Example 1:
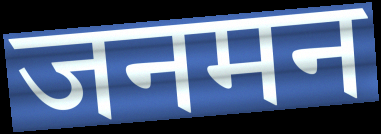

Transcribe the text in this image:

जनमन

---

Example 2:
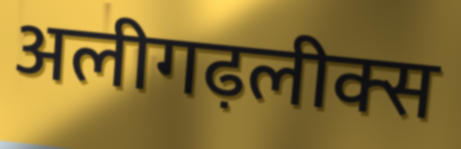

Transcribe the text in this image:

अलीगढ़लीक्स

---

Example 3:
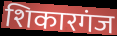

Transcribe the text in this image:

शिकारगंज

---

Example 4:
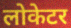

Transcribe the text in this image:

लोकेटर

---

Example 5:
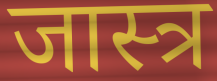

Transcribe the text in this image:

जास्त्र